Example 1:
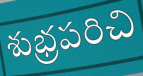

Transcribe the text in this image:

శుభ్రపరిచి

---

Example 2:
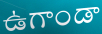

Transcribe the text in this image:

ఉగాండా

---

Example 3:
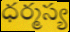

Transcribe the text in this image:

ధర్మస్య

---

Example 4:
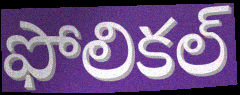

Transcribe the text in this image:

ఫోలికల్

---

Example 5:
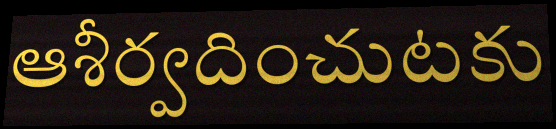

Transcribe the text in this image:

ఆశీర్వదించుటకు